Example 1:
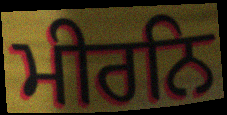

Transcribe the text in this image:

ਮੀਰਨਿ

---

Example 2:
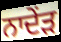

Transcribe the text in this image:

ਨਾਦੇਂੜ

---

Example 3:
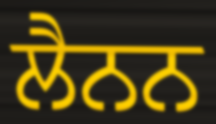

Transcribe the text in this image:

ਲੈਨਨ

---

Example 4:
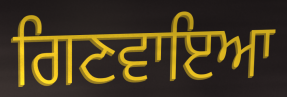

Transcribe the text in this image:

ਗਿਣਵਾਇਆ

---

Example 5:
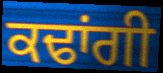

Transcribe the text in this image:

ਕਢਾਂਗੀ